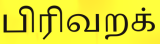
பிரிவறக்